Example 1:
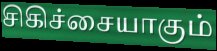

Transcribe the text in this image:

சிகிச்சையாகும்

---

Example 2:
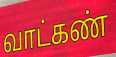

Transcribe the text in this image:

வாட்கண்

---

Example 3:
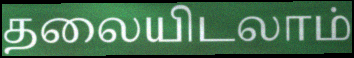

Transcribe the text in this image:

தலையிடலாம்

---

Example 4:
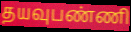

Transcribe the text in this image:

தயவுபண்ணி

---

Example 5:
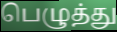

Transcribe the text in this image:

பெழுத்து